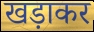
खड़ाकर